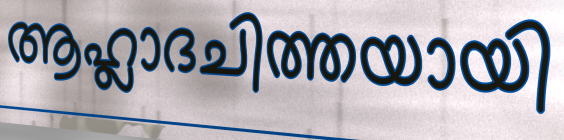
ആഹ്ലാദചിത്തയായി